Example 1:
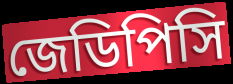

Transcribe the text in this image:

জেডিপিসি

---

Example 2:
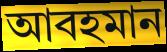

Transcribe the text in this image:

আবহমান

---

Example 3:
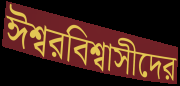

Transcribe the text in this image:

ঈশ্বরবিশ্বাসীদের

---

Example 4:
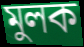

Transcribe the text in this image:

মুলক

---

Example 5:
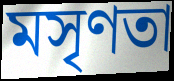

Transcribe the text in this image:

মসৃণতা